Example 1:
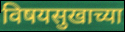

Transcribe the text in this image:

विषयसुखाच्या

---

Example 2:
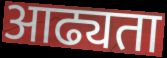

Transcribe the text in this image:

आढ्यता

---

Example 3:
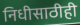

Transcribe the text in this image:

निधीसाठीही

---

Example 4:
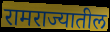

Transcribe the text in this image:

रामराज्यातील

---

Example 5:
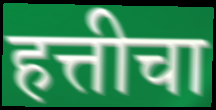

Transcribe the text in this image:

हत्तीचा